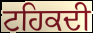
ਟਹਿਕਦੀ